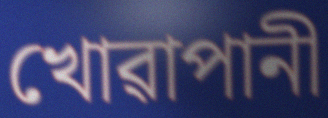
খোৱাপানী